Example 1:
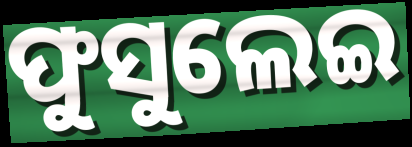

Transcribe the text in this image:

ଫୁସୁଲେଇ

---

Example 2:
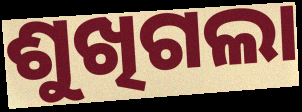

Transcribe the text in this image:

ଶୁଖିଗଲା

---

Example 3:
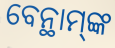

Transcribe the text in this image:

ବେନ୍ଥାମ୍‌ଙ୍କ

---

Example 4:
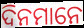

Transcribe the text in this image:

ଦିନମାନେ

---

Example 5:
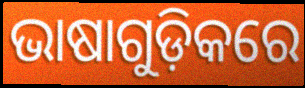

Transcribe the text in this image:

ଭାଷାଗୁଡ଼ିକରେ